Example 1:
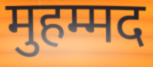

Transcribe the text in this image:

मुहम्मद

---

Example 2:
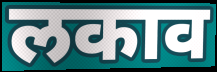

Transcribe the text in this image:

लकाव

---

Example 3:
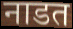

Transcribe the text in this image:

नाडत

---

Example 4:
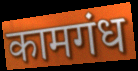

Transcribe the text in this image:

कामगंध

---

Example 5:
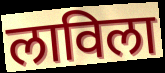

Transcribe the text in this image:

लाविला